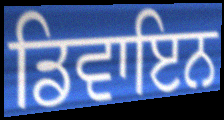
ਡਿਵਾਇਨ